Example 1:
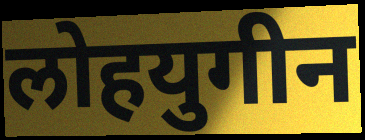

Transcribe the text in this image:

लोहयुगीन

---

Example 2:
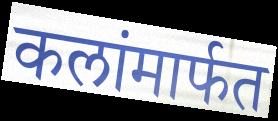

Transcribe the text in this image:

कलांमार्फत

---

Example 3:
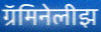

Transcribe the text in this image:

ग्रॅमिनेलीझ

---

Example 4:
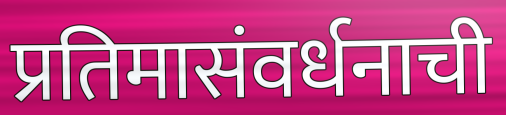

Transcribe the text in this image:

प्रतिमासंवर्धनाची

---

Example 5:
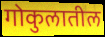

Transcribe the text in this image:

गोकुलातील